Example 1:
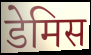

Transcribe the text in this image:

डेमिस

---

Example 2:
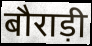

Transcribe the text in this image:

बौराड़ी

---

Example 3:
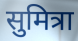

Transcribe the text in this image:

सुमित्रा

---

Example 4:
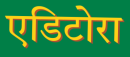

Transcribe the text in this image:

एडिटोरा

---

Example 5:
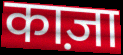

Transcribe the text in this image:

काज़ा